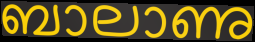
ബാലാണു